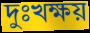
দুঃখক্ষয়